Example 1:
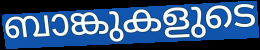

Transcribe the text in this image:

ബാങ്കുകളുടെ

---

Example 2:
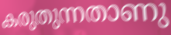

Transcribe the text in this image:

കരുതുന്നതാണു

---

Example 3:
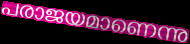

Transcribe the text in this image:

പരാജയമാണെന്നു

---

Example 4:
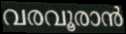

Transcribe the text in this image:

വരവൂരാൻ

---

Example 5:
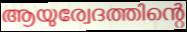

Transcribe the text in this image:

ആയുര്വേദത്തിന്റെ